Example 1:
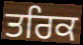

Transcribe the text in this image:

ਤਰਿਕ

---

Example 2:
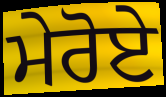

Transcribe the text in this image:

ਮੇਰੋਏ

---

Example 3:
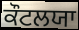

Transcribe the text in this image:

ਕੌਟਲਯਾ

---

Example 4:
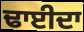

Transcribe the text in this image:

ਢਾਈਦਾ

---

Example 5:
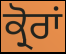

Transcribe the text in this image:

ਕ੍ਰੋਰਾਂ